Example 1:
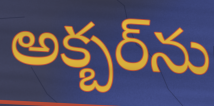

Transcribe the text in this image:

అక్బర్‌ను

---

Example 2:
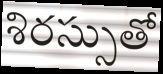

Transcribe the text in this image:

శిరస్సుతో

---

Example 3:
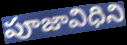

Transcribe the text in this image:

పూజావిధిని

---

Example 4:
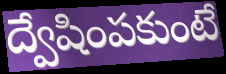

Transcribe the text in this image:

ద్వేషింపకుంటే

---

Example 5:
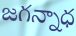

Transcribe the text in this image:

జగన్నాధ